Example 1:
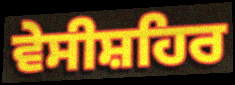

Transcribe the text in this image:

ਵੇਸੀਸ਼ਹਿਰ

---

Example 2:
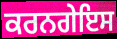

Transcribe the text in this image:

ਕਰਨਗੇਇਸ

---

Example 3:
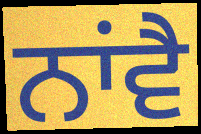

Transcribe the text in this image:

ਨਾਂਵੈ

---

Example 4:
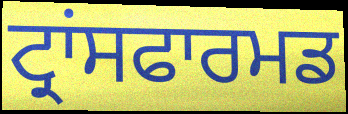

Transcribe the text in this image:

ਟ੍ਰਾਂਸਫਾਰਮਡ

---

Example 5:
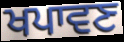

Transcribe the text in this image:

ਖਪਾਵਣ